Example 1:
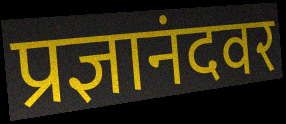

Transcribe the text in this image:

प्रज्ञानंदवर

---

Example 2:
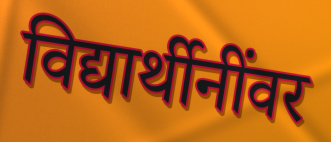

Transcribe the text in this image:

विद्यार्थीनींवर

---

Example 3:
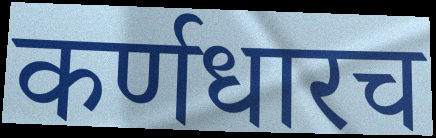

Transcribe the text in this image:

कर्णधारच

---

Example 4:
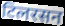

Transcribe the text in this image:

टिलरसन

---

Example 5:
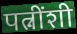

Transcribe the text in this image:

पत्नींशी